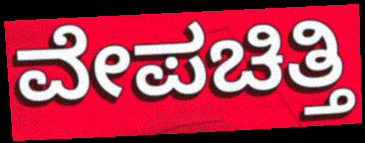
ವೇಪಚಿತ್ತಿ